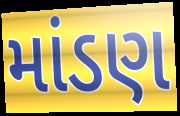
માંડણ